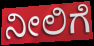
ನೀಲಿಗೆ